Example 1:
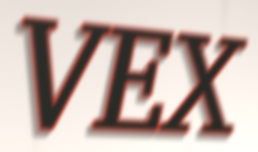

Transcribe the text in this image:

VEX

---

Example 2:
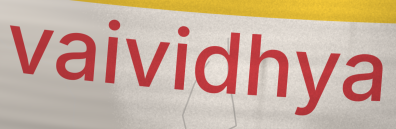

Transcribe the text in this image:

vaividhya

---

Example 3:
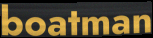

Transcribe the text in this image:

boatman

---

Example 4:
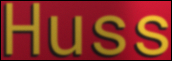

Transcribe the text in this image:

Huss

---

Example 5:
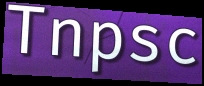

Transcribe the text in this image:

Tnpsc